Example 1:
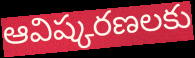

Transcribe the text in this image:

ఆవిష్కరణలకు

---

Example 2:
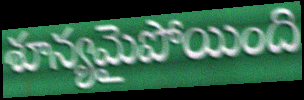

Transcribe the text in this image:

శూన్యమైపోయింది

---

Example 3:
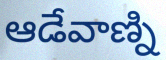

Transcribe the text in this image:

ఆడేవాణ్ని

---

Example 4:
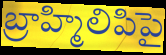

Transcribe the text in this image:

బ్రాహ్మిలిపిపై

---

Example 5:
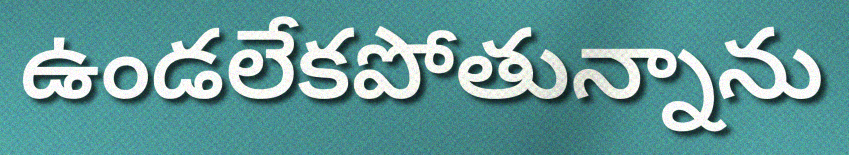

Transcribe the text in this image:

ఉండలేకపోతున్నాను